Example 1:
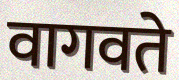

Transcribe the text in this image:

वागवते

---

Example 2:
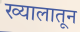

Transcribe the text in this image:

ख्यालातून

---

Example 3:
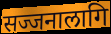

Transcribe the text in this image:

सज्जनालागि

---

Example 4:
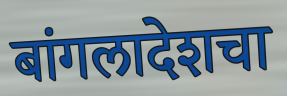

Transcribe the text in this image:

बांगलादेशचा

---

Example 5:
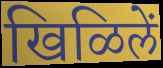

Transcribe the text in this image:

खिळिलें